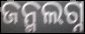
ଜନ୍ମଲଗ୍ନ